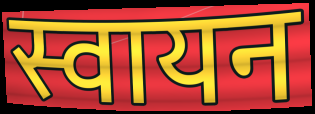
स्वायन